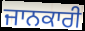
ਜਾਨਕਾਰੀ